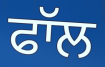
ਫਾੱਲ